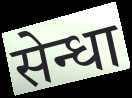
सेन्धा